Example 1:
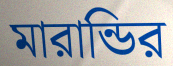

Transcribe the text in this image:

মারান্ডির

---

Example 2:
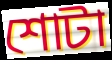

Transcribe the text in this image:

শোটা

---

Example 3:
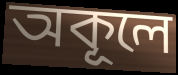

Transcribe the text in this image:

অকূলে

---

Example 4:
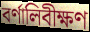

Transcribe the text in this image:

বর্ণালিবীক্ষণ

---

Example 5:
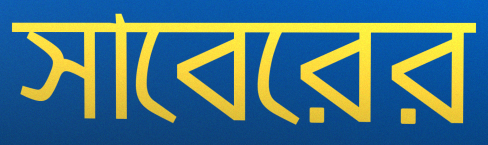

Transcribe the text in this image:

সাবেরের